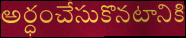
అర్ధంచేసుకొనటానికి